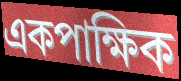
একপাক্ষিক